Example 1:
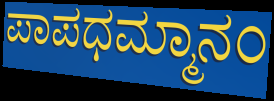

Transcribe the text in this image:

ಪಾಪಧಮ್ಮಾನಂ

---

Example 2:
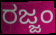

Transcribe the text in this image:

ರಜ್ಜಂ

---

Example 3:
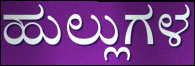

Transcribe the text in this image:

ಹುಲ್ಲುಗಳ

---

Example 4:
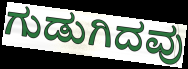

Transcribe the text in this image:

ಗುಡುಗಿದವು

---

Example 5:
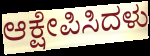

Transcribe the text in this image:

ಆಕ್ಷೇಪಿಸಿದಳು